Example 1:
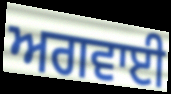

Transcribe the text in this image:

ਅਗਵਾਈ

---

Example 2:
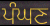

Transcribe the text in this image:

ਪੰਘਣ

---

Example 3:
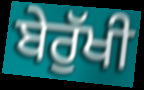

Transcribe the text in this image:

ਬੇਰੁੱਖੀ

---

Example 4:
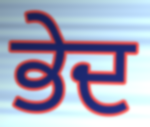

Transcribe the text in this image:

ਭੇਦ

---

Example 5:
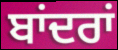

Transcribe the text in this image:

ਬਾਂਦਰਾਂ